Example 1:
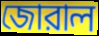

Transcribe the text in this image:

জোরাল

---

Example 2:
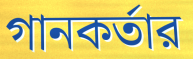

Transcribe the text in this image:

গানকর্তার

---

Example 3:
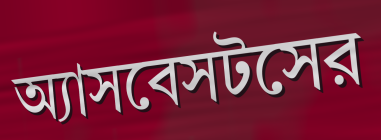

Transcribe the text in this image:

অ্যাসবেসটসের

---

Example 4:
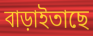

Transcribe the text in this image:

বাড়াইতাছে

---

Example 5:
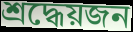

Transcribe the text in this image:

শ্রদ্ধেয়জন